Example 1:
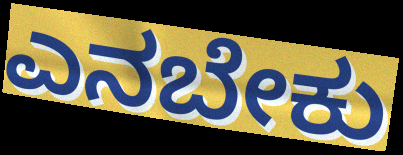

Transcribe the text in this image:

ಎನಬೇಕು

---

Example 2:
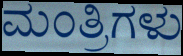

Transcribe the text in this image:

ಮಂತ್ರಿಗಳು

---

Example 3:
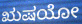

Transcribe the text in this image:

ಋಷಯೋ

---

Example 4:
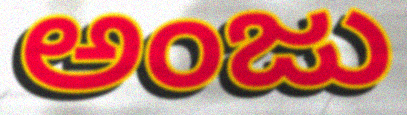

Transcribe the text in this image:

ಅಂಜು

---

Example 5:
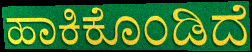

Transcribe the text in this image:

ಹಾಕಿಕೊಂಡಿದೆ